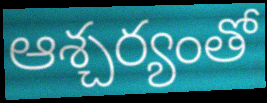
ఆశ్చర్యంతో